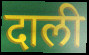
दाली